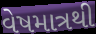
વેષમાત્રથી